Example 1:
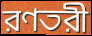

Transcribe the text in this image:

রণতরী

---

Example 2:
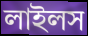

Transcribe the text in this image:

লাইলস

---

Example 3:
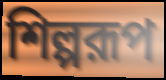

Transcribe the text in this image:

শিল্পরূপ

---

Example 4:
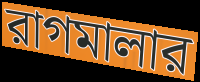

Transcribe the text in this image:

রাগমালার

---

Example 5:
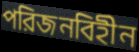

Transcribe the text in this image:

পরিজনবিহীন